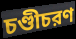
চণ্ডীচরণ